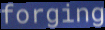
forging